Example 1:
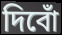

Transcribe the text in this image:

দিবোঁ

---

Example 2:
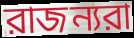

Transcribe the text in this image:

রাজন্যরা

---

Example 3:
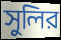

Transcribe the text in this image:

সুলির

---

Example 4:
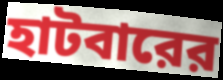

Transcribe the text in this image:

হাটবারের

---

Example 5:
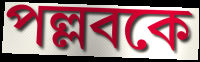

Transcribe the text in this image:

পল্লবকে